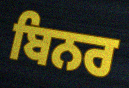
ਬਿਨਰ